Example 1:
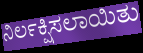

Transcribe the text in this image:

ನಿರ್ಲಕ್ಷಿಸಲಾಯಿತು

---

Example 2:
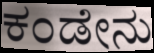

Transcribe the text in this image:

ಕಂಡೇನು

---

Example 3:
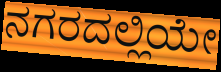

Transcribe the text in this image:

ನಗರದಲ್ಲಿಯೇ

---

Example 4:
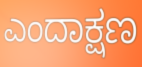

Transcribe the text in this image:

ಎಂದಾಕ್ಷಣ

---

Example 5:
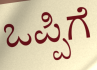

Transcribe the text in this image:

ಒಪ್ಪಿಗೆ